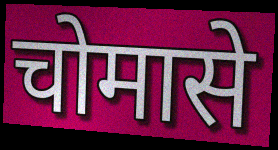
चोमासे